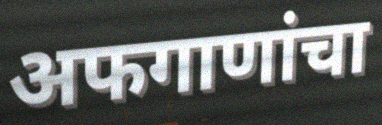
अफगाणांचा